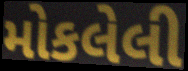
મોકલેલી